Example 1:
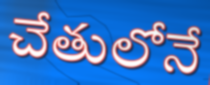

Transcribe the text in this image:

చేతులోనే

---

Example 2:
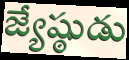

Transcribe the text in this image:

జ్యేష్ఠుడు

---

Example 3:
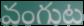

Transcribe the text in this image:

వంగుట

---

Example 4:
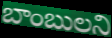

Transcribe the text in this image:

బాంబులని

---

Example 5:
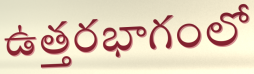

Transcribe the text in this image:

ఉత్తరభాగంలో